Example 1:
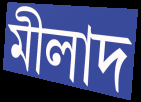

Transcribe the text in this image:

মীলাদ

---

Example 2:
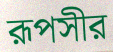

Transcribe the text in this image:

রূপসীর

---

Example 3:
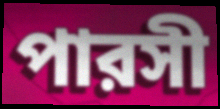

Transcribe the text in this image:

পারসী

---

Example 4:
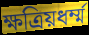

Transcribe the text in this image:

ক্ষত্রিয়ধর্ম্ম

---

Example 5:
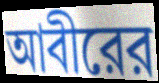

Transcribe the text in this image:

আবীরের